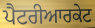
ਪੈਟਰੀਆਰਕੇਟ